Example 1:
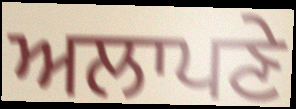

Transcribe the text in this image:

ਅਲਾਪਣੇ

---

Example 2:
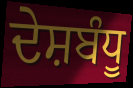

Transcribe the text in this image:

ਦੇਸ਼ਬੰਧੂ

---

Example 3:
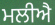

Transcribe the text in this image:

ਮਲੀਐ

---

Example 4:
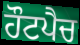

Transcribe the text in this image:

ਹੌਟਪੈਚ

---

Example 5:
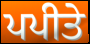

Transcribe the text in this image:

ਪਪੀਤੇ